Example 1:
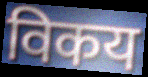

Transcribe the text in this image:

विकय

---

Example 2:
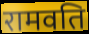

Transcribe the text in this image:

रामवति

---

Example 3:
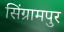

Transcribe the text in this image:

सिंग्रामपुर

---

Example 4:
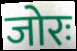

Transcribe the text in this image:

जोरः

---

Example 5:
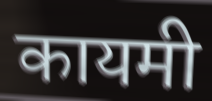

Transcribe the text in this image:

कायमी